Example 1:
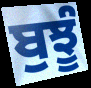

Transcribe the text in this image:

ਬੁਝੂੰ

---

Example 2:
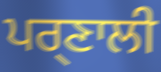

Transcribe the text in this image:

ਪਰ੍ਣਾਲੀ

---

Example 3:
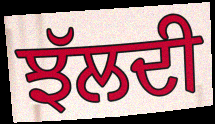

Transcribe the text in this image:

ਝੱਲਦੀ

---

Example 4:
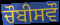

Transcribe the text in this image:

ਚੌਬੀਸਵੌ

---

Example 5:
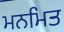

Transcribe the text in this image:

ਮਨਮਿਤ